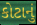
કોટાનું